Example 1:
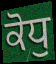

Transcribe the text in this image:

ਕੋਧੁ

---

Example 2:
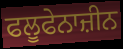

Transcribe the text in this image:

ਫਲੂਫੇਨਾਜ਼ੀਨ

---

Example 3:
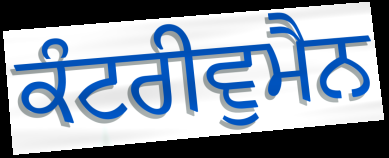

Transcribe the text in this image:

ਕੰਟਰੀਵੁਮੈਨ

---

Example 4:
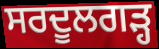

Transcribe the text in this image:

ਸਰਦੂਲਗੜ੍ਹ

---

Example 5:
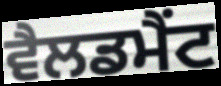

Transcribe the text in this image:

ਵੈਲਡਮੈਂਟ